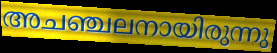
അചഞ്ചലനായിരുന്നു